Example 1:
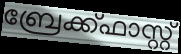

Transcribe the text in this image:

ബ്രേക്ക്ഫാസ്റ്റ്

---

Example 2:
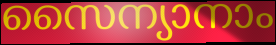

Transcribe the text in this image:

സൈന്യാനാം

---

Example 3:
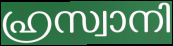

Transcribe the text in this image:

ഹ്രസ്വാനി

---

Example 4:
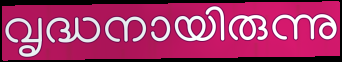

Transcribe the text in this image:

വൃദ്ധനായിരുന്നു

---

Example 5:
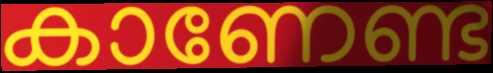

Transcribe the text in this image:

കാണേണ്ട